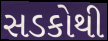
સડકોથી